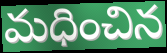
మధించిన